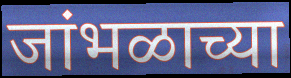
जांभळाच्या